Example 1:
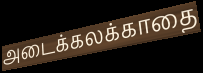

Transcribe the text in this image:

அடைக்கலக்காதை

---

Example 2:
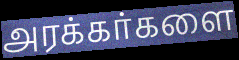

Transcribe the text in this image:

அரக்கர்களை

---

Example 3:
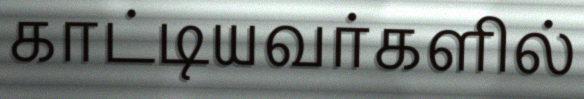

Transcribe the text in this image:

காட்டியவர்களில்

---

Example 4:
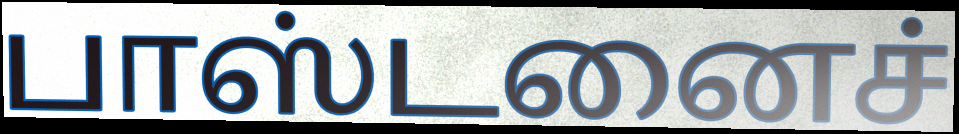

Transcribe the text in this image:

பாஸ்டனைச்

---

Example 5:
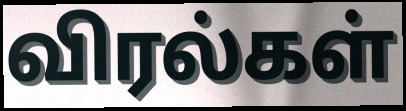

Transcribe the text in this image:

விரல்கள்